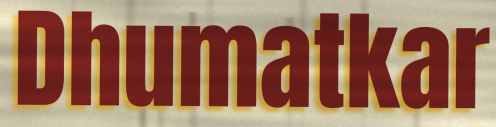
Dhumatkar